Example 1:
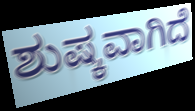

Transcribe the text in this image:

ಶುಷ್ಕವಾಗಿದೆ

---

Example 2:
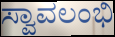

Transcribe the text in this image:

ಸ್ವಾವಲಂಭಿ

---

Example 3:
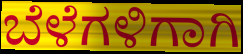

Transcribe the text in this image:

ಬೆಳೆಗಳಿಗಾಗಿ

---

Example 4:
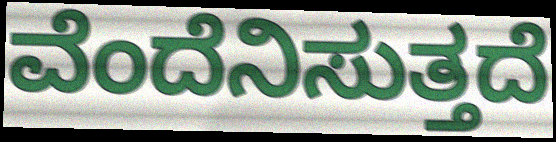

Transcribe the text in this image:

ವೆಂದೆನಿಸುತ್ತದೆ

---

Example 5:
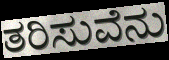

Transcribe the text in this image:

ತರಿಸುವೆನು